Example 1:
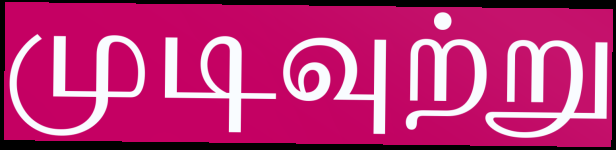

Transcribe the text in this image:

முடிவுற்று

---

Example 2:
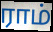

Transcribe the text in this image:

ராம்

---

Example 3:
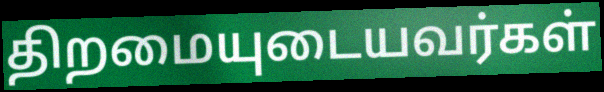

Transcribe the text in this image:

திறமையுடையவர்கள்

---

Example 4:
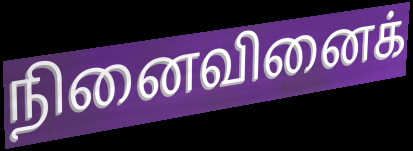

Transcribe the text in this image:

நினைவினைக்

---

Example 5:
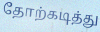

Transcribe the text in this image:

தோற்கடித்து